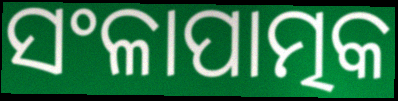
ସଂଳାପାତ୍ମକ